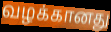
வழக்கானது